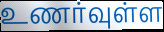
உணர்வுள்ள